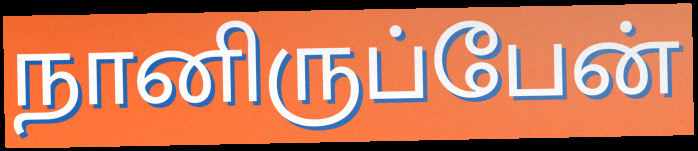
நானிருப்பேன்